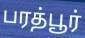
பரத்பூர்